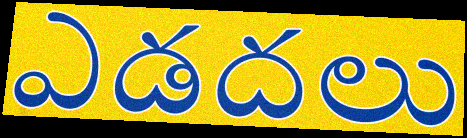
ఎడదలు